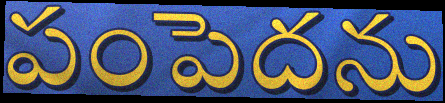
పంపెదను